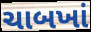
ચાબખાં